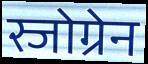
स्जोग्रेन